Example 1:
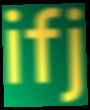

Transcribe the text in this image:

ifj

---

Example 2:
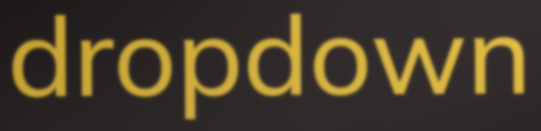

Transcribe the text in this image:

dropdown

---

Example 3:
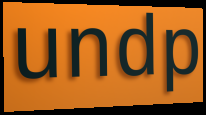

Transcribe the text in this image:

undp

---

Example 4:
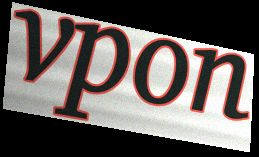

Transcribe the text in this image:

vpon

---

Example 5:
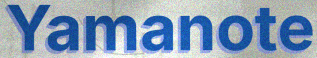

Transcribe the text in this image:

Yamanote